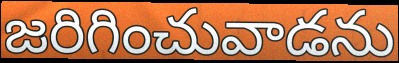
జరిగించువాడను